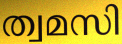
ത്വമസി